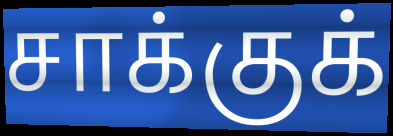
சாக்குக்